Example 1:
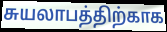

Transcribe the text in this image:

சுயலாபத்திற்காக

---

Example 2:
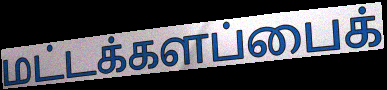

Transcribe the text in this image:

மட்டக்களப்பைக்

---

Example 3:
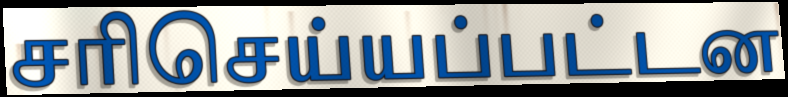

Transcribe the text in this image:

சரிசெய்யப்பட்டன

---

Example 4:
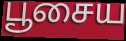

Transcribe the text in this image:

பூசைய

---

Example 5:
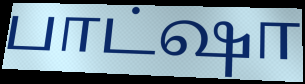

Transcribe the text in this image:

பாட்ஷா